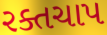
રક્તચાપ